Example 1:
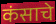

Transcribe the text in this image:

कंसाचे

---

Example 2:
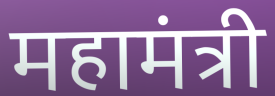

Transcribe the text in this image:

महामंत्री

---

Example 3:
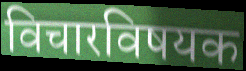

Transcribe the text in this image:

विचारविषयक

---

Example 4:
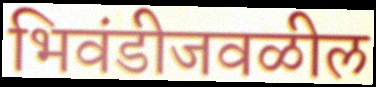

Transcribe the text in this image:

भिवंडीजवळील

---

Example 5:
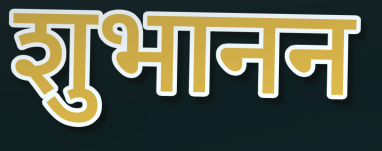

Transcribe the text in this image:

शुभानन